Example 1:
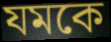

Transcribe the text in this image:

যমকে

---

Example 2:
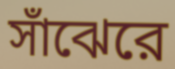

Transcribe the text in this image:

সাঁঝেরে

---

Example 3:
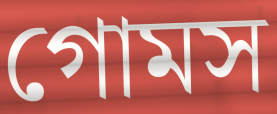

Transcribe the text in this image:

গোমস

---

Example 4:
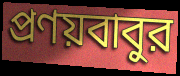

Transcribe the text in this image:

প্রণয়বাবুর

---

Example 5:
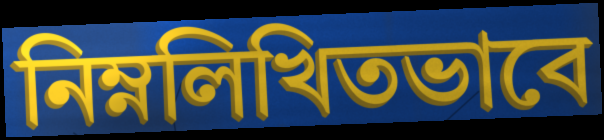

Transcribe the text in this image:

নিম্নলিখিতভাবে